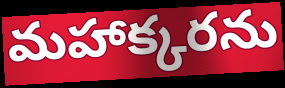
మహాక్కరను